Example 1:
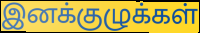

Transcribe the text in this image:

இனக்குழுக்கள்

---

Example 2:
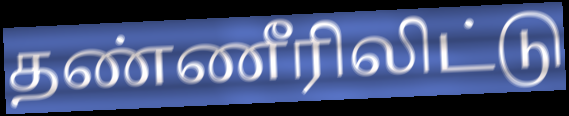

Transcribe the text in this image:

தண்ணீரிலிட்டு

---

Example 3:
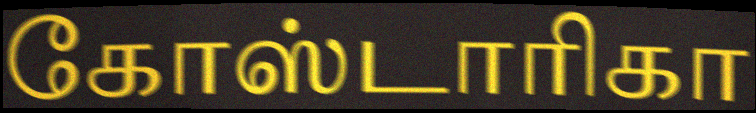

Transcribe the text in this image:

கோஸ்டாரிகா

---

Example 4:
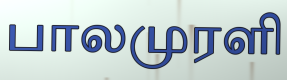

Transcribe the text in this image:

பாலமுரளி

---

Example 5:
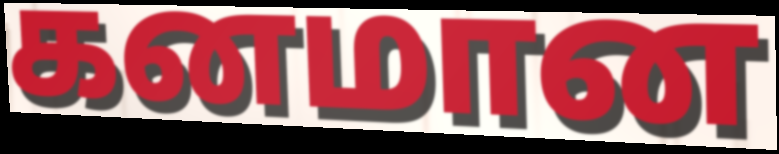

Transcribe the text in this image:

கனமான